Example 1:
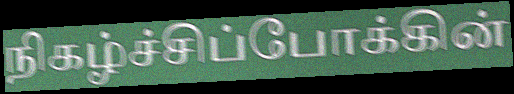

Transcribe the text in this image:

நிகழ்ச்சிப்போக்கின்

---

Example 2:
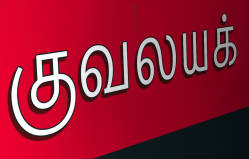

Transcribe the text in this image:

குவலயக்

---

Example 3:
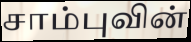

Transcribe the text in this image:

சாம்புவின்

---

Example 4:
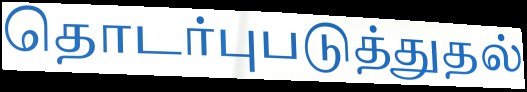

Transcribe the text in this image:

தொடர்புபடுத்துதல்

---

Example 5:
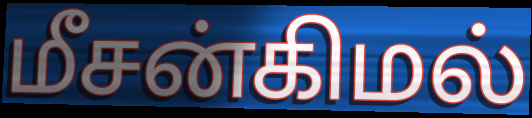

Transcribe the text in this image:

மீசன்கிமல்